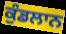
ਕੁੰਡਲਾਨ